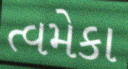
ત્વમેકા